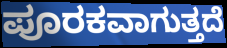
ಪೂರಕವಾಗುತ್ತದೆ